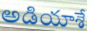
అడియాశే